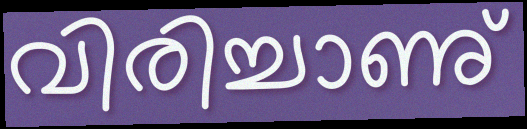
വിരിച്ചാണു്